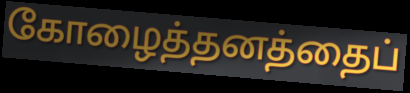
கோழைத்தனத்தைப்